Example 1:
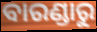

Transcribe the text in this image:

ବାରଣ୍ଡାରୁ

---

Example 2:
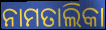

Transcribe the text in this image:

ନାମତାଲିକା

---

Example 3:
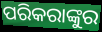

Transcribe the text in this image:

ପରିକରାଙ୍କୁର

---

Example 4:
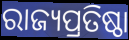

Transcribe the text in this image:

ରାଜ୍ୟପ୍ରତିଷ୍ଠା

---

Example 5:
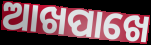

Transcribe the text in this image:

ଆଖପାଖେ